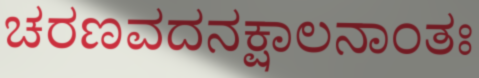
ಚರಣವದನಕ್ಷಾಲನಾಂತಃ